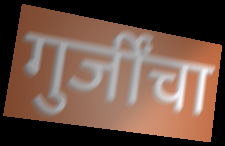
गुर्जींचा